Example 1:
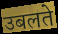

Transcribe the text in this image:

उबलते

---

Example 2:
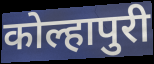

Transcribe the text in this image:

कोल्हापुरी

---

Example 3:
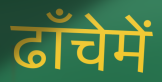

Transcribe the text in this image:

ढाँचेमें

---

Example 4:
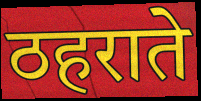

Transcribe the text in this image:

ठहराते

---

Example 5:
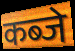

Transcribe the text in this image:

कब्‍जे